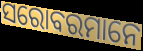
ସରୋବରମାନେ